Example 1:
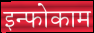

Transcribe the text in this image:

इन्फोकाम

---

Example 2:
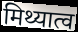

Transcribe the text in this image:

मिथ्यात्व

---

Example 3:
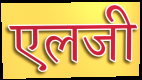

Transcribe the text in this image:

एलजी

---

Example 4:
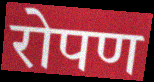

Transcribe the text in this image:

रोपण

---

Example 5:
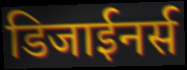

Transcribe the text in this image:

डिजाईनर्स